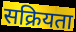
सक्रियता